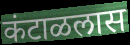
कंटाळलास